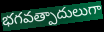
భగవత్పాదులుగా